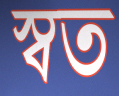
স্বত